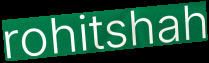
rohitshah